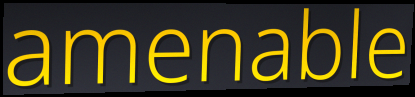
amenable